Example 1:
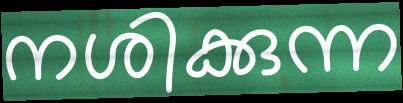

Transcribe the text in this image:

നശിക്കുന്ന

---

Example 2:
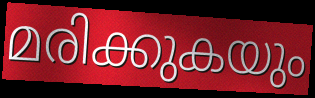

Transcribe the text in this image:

മരിക്കുകയും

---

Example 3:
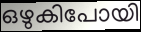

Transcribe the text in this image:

ഒഴുകിപോയി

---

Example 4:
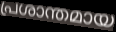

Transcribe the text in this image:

പ്രശാന്തമായ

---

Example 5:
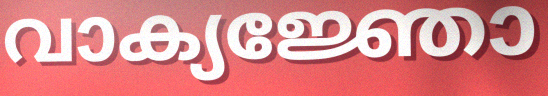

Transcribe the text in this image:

വാക്യജ്ഞോ